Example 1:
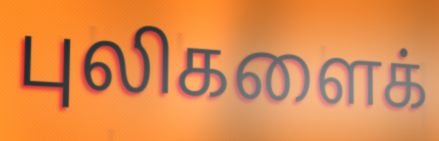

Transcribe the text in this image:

புலிகளைக்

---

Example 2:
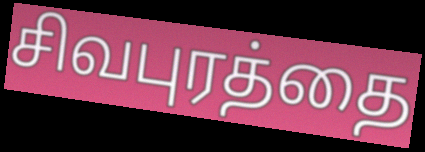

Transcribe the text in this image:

சிவபுரத்தை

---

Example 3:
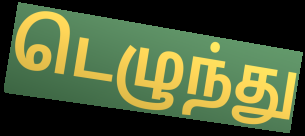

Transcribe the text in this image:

டெழுந்து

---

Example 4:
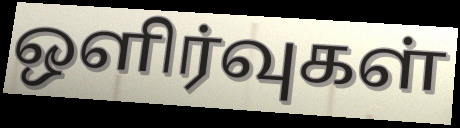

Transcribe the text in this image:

ஒளிர்வுகள்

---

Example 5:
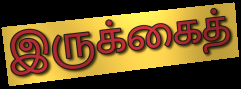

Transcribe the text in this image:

இருக்கைத்